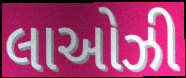
લાઓઝી